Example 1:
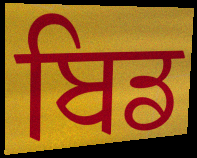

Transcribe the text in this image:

ਬਿਡ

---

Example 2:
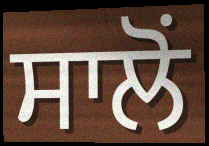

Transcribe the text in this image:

ਸਾਲੋਂ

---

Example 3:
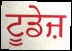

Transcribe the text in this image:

ਟੂਡੇਜ਼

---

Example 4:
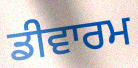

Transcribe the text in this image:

ਡੀਵਾਰਮ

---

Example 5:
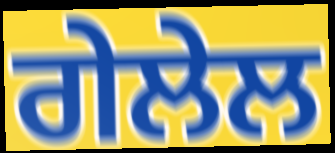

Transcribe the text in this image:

ਗੇਲੇਲ